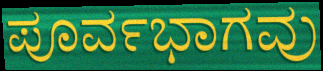
ಪೂರ್ವಭಾಗವು